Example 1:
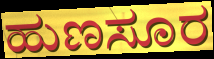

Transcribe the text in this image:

ಹುಣಸೂರ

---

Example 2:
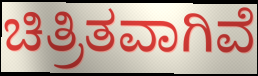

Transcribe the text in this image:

ಚಿತ್ರಿತವಾಗಿವೆ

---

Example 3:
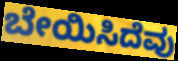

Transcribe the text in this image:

ಬೇಯಿಸಿದೆವು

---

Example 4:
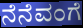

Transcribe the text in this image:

ನೆನೆವಂಗೆ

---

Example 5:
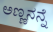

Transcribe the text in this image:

ಅಣ್ಣನನ್ನೆ